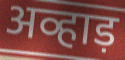
अव्हाड़